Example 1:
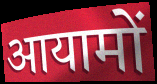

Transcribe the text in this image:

आयामों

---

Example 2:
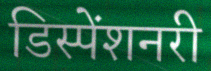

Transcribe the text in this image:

डिस्पेंशनरी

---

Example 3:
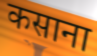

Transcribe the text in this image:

कसाना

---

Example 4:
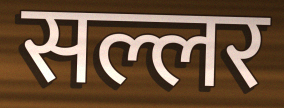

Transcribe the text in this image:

सल्लर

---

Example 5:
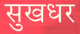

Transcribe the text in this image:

सुखधर